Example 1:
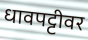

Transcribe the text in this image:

धावपट्टीवर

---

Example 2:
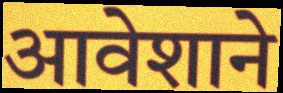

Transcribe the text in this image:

आवेशाने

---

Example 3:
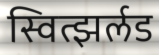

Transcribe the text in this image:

स्वित्झर्लड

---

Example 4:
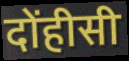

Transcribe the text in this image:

दोंहीसी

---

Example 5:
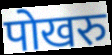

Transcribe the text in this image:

पोखरु